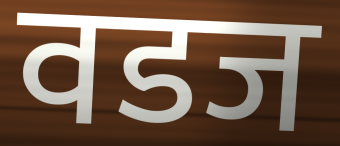
वडज